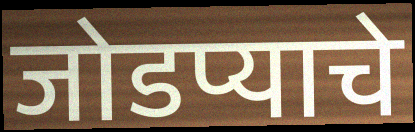
जोडप्याचे